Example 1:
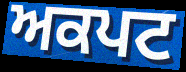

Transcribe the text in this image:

ਅਕਪਟ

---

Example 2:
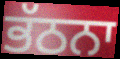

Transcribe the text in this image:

ਭੱਠਨਾ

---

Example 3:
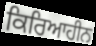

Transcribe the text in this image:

ਕਿਰਿਆਹੀਨ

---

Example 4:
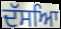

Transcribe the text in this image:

ਦੱਸਆਿ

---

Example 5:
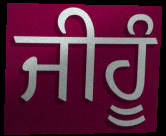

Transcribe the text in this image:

ਜੀਹੂੰ